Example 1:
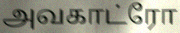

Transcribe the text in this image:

அவகாட்ரோ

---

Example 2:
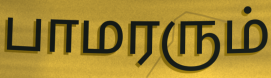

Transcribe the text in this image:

பாமரரும்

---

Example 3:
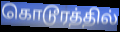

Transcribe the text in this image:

கொடூரத்தில்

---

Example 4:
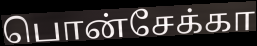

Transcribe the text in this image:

பொன்சேக்கா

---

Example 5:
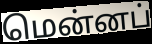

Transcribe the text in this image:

மென்னப்